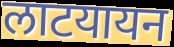
लाटयायन